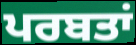
ਪਰਬਤਾਂ